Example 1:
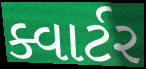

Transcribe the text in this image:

ક્વાર્ટર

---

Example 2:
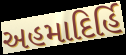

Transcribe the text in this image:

અહમાદિર્હિ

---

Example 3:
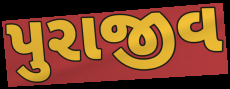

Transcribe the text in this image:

પુરાજીવ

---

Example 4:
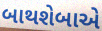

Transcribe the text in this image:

બાથશેબાએ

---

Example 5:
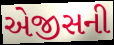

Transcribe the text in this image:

એજીસની